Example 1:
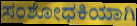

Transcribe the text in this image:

ಸಂಶೋಧಕಿಯಾಗಿ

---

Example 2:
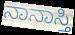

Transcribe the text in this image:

ನಾನಾಸ್ತಿ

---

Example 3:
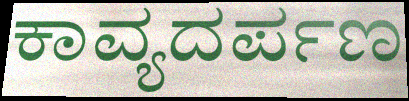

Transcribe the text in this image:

ಕಾವ್ಯದರ್ಪಣ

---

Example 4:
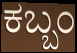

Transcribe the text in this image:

ಕಬ್ಬಂ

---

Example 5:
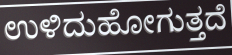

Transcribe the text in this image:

ಉಳಿದುಹೋಗುತ್ತದೆ